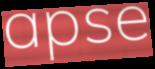
apse